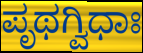
ಪೃಥಗ್ವಿಧಾಃ